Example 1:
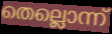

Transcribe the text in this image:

തെല്ലൊന്ന്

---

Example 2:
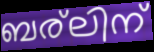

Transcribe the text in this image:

ബര്ലിന്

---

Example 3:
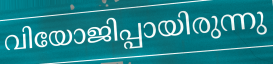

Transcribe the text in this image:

വിയോജിപ്പായിരുന്നു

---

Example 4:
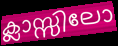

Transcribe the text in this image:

ക്ലാസ്സിലോ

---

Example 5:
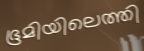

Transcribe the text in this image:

ഭൂമിയിലെത്തി